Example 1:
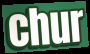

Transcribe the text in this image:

chur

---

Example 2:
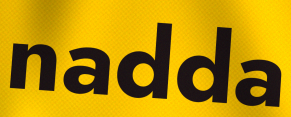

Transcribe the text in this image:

nadda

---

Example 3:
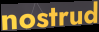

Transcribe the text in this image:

nostrud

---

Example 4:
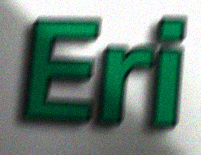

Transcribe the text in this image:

Eri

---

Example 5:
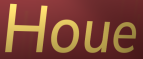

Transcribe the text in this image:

Houe